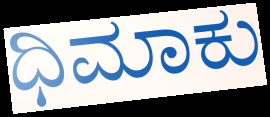
ಧಿಮಾಕು